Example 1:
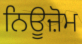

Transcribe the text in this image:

ਨਿਊਜ਼ੋਮ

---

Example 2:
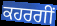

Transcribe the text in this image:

ਕਹਰਗੀਂ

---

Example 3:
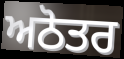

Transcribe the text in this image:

ਅਠੋਤਰ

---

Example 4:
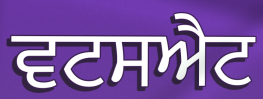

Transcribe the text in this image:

ਵਟਸਐਟ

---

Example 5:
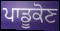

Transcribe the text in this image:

ਪਾਡੂਕੋਣ